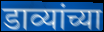
डाव्यांच्या